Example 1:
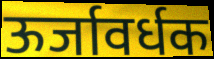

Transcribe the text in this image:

ऊर्जावर्धक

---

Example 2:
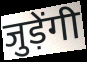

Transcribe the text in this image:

जुड़ेंगी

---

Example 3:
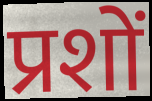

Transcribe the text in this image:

प्रशों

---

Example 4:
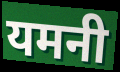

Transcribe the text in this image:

यमनी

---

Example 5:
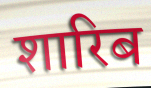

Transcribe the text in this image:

शारिब